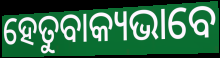
ହେତୁବାକ୍ୟଭାବେ